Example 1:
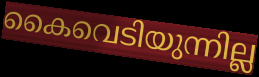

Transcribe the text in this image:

കൈവെടിയുന്നില്ല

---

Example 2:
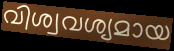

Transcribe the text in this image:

വിശ്വവശ്യമായ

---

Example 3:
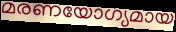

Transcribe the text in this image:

മരണയോഗ്യമായ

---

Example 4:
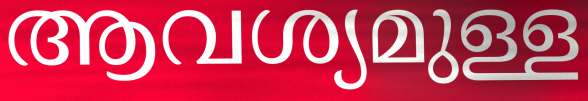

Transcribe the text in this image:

ആവശ്യമുള്ള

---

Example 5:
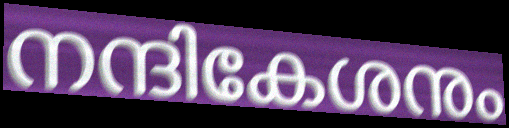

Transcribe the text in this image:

നന്ദികേശനും